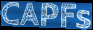
CAPFs